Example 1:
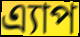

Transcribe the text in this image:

এ্যাপ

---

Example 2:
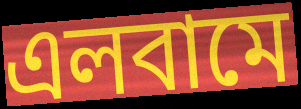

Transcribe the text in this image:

এলবামে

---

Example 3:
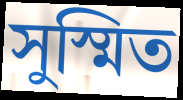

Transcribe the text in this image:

সুস্মিত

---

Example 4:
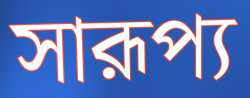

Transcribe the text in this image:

সারূপ্য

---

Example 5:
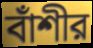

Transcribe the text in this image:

বাঁশীর